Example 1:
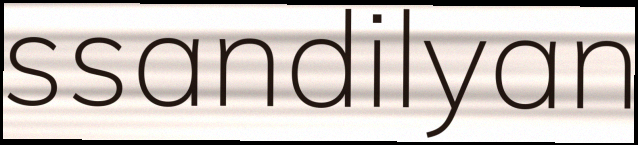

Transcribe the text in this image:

ssandilyan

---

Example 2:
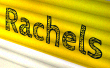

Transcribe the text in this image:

Rachels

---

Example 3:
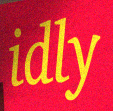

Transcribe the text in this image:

idly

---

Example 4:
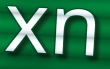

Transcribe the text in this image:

xn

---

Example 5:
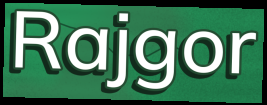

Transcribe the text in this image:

Rajgor